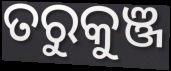
ତରୁକୁଞ୍ଜ